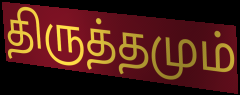
திருத்தமும்